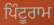
ਪਿੰਟੂਰਾਮ